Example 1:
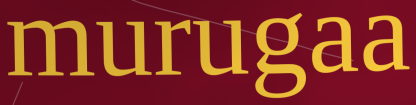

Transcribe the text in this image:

murugaa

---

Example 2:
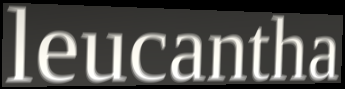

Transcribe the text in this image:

leucantha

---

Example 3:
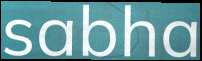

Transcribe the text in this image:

sabha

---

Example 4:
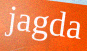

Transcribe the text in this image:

jagda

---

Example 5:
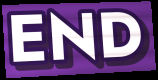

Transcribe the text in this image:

END